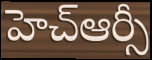
హెచ్ఆర్సీ